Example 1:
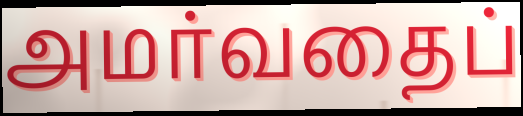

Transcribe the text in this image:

அமர்வதைப்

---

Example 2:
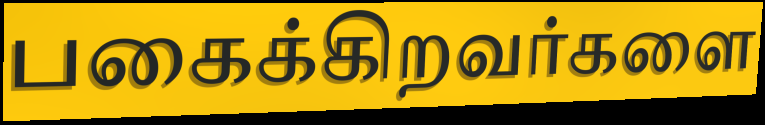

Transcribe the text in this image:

பகைக்கிறவர்களை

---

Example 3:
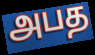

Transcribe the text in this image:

அபத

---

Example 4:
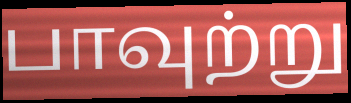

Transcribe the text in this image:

பாவுற்று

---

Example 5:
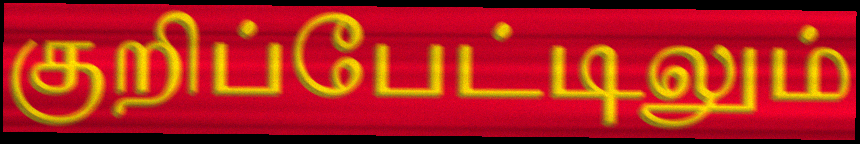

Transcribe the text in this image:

குறிப்பேட்டிலும்